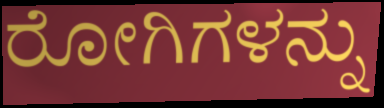
ರೋಗಿಗಳನ್ನು